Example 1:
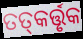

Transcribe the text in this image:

ତତ୍‌କର୍ତ୍ତୃକ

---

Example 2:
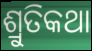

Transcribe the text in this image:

ଶ୍ରୁତିକଥା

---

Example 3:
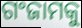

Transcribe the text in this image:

ଗଂଜାମକୁ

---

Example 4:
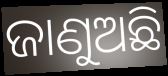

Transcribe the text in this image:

ଜାଣୁଅଛି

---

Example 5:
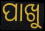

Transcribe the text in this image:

ପାଖୁ